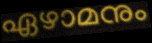
ഏഴാമനും